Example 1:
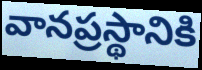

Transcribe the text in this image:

వానప్రస్థానికి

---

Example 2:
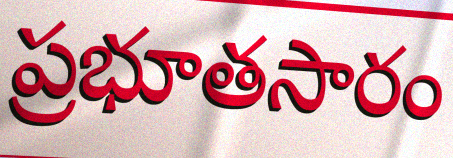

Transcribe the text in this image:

ప్రభూతసారం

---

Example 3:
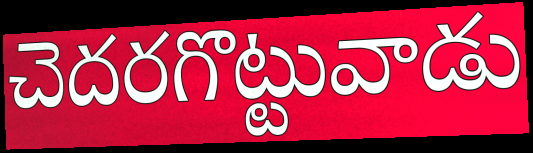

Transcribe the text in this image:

చెదరగొట్టువాడు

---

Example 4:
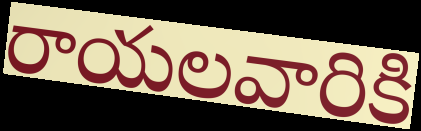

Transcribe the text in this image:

రాయలవారికి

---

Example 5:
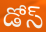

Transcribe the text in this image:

డోస్